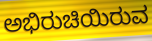
ಅಭಿರುಚಿಯಿರುವ